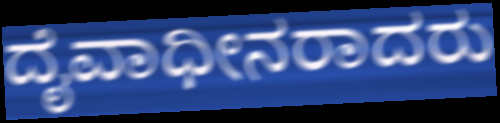
ದೈವಾಧೀನರಾದರು